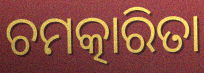
ଚମତ୍କାରିତା